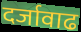
दर्जावाढ